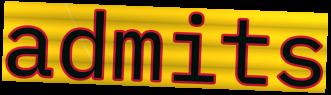
admits